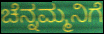
ಚೆನ್ನಮ್ಮನಿಗೆ